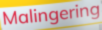
Malingering